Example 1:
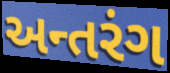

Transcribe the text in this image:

અન્તરંગ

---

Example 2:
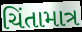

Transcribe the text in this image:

ચિંતામાત્ર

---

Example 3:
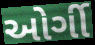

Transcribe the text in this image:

ઓર્ગી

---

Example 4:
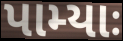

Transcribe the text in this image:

પામ્યાઃ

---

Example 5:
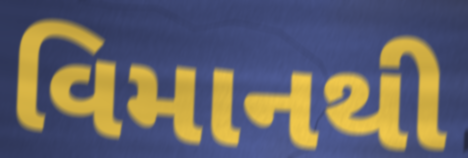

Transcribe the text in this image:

વિમાનથી